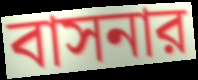
বাসনার